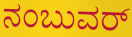
ನಂಬುವರ್